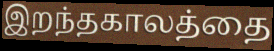
இறந்தகாலத்தை